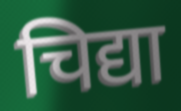
चिद्या